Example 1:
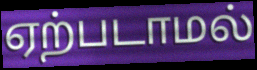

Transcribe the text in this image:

ஏற்படாமல்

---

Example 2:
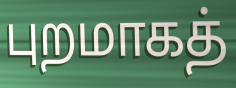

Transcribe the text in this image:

புறமாகத்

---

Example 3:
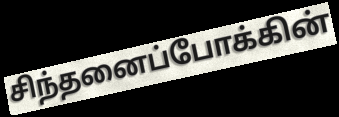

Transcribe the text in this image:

சிந்தனைப்போக்கின்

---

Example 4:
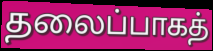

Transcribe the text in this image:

தலைப்பாகத்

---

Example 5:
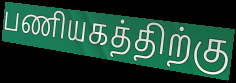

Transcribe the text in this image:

பணியகத்திற்கு